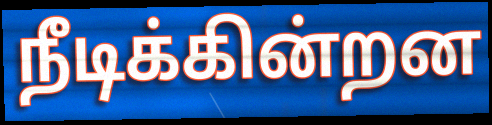
நீடிக்கின்றன